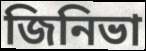
জিনিভা